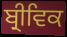
ਬ੍ਰੀਵਿਕ